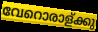
വേറൊരാള്ക്കു